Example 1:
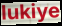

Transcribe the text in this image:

lukiye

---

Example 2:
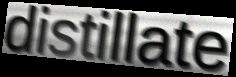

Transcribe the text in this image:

distillate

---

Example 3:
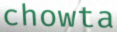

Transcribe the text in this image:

chowta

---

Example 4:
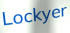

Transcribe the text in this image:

Lockyer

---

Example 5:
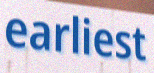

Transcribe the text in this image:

earliest